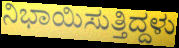
ನಿಭಾಯಿಸುತ್ತಿದ್ದಳು